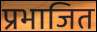
प्रभाजित